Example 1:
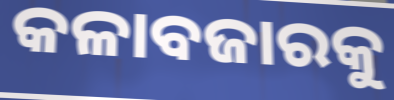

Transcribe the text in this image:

କଳାବଜାରକୁ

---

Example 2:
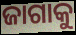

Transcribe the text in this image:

ଜାଗାକୁ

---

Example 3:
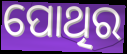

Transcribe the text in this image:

ପୋଥିର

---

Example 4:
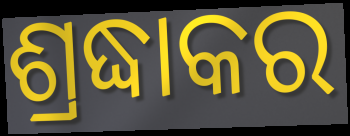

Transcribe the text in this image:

ଶ୍ରଦ୍ଧାକର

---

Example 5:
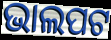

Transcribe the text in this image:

ଭାଲପଟ